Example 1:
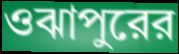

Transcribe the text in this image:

ওঝাপুরের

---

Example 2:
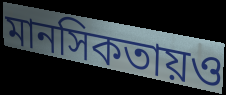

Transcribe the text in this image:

মানসিকতায়ও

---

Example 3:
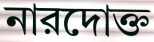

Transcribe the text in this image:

নারদোক্ত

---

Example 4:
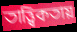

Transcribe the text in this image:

তাত্ত্বিকতায়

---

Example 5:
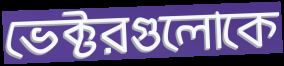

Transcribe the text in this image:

ভেক্টরগুলোকে